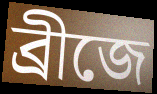
ব্রীজে